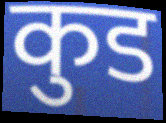
कुड